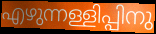
എഴുന്നള്ളിപ്പിനു